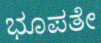
ಭೂಪತೇ